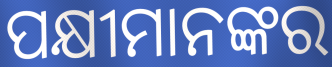
ପକ୍ଷୀମାନଙ୍କର